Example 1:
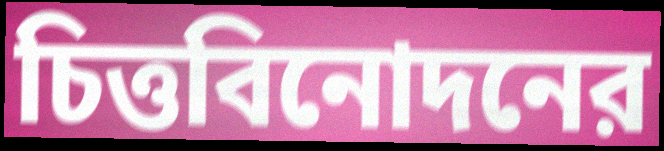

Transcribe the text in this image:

চিত্তবিনোদনের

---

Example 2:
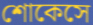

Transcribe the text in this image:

শোকেসে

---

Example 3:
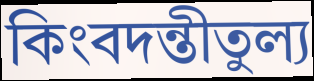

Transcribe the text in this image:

কিংবদন্তীতুল্য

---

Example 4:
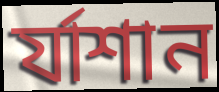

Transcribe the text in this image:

র্যাশান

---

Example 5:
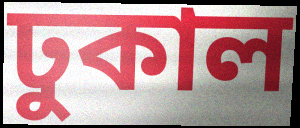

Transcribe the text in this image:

ঢুকাল